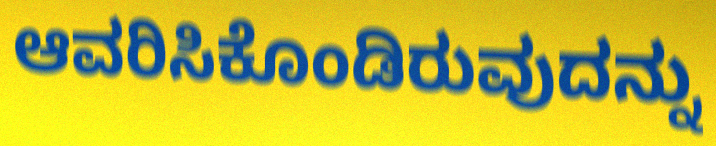
ಆವರಿಸಿಕೊಂಡಿರುವುದನ್ನು